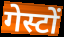
गेस्टों